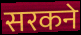
सरकने